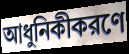
আধুনিকীকরণে